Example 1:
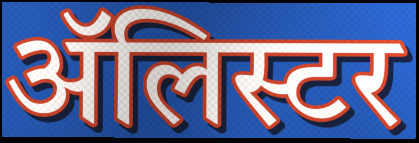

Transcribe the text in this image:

ॲलिस्टर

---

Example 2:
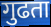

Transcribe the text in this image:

गुढता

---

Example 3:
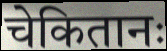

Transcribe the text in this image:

चेकितानः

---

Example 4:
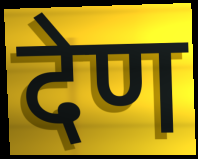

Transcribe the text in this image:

देण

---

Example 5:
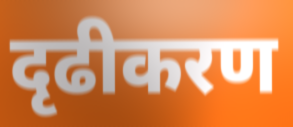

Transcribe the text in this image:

दृढीकरण